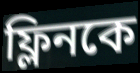
ফ্লিনকে